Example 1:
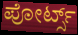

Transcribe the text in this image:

ಪೋರ್ಟ್ಸ್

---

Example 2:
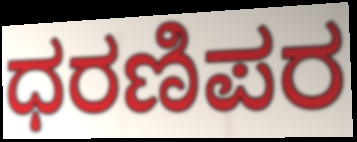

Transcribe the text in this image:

ಧರಣಿಪರ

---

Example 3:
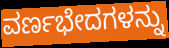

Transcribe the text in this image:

ವರ್ಣಭೇದಗಳನ್ನು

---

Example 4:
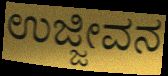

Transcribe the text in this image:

ಉಜ್ಜೀವನ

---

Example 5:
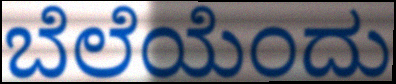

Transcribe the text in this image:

ಬೆಲೆಯೆಂದು